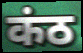
कंठ